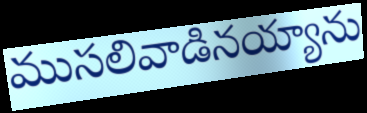
ముసలివాడినయ్యాను